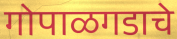
गोपाळगडाचे